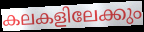
കലകളിലേക്കും